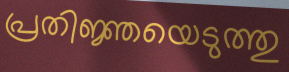
പ്രതിജ്ഞയെടുത്തു